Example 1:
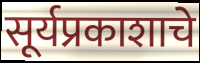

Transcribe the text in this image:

सूर्यप्रकाशाचे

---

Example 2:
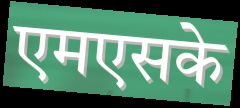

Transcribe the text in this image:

एमएसके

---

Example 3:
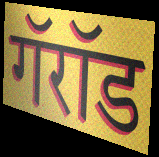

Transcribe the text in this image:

गॅरॉड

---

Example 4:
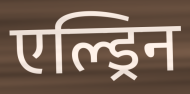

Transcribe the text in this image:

एल्ड्रिन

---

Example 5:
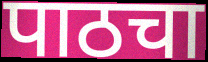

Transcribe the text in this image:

पाठचा